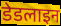
डेडलाइन